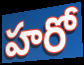
హరో